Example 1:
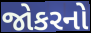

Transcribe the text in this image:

જોકરનો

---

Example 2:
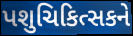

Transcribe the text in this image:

પશુચિકિત્સકને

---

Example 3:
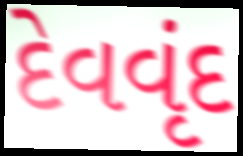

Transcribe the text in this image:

દેવવૃંદ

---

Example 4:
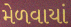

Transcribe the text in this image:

મેળવાયાં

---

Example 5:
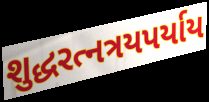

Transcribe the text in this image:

શુદ્ધરત્નત્રયપર્યાય